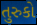
તુરુકો